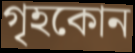
গৃহকোন